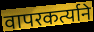
वापरकर्त्याने